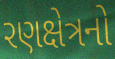
રણક્ષેત્રનો